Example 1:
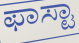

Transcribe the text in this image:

ಫಾಸ್ಟಾ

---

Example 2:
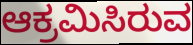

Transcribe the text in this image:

ಆಕ್ರಮಿಸಿರುವ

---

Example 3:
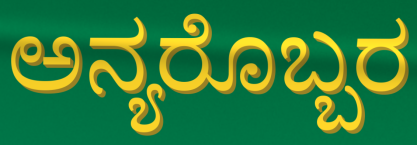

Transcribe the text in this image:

ಅನ್ಯರೊಬ್ಬರ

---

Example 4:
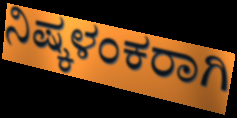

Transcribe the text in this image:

ನಿಷ್ಕಳಂಕರಾಗಿ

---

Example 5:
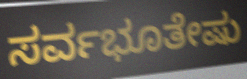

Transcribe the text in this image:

ಸರ್ವಭೂತೇಷು